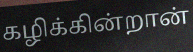
கழிக்கின்றான்